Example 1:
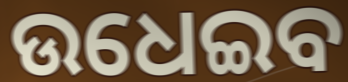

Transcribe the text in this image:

ଉଧେଇବ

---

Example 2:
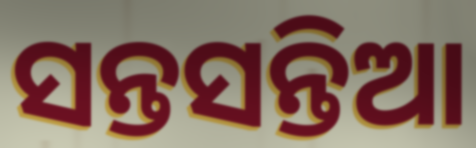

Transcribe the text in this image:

ସନ୍ତସନ୍ତିଆ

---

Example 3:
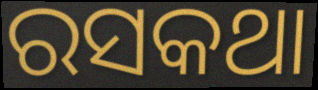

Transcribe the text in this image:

ରସକଥା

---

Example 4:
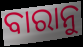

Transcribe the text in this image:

ବାରାନୁ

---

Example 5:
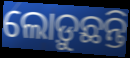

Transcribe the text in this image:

ଲୋଡ଼ୁଛନ୍ତି